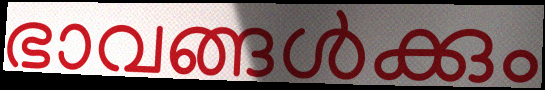
ഭാവങ്ങൾക്കും